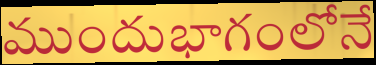
ముందుభాగంలోనే